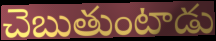
చెబుతుంటాడు